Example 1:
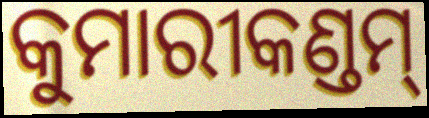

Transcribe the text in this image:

କୁମାରୀକଣ୍ଡମ୍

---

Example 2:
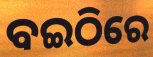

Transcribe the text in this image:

ବଇଠିରେ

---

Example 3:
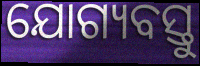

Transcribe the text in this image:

ଯୋଗ୍ୟବସ୍ତୁ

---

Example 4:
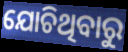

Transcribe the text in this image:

ଯୋଚିଥିବାରୁ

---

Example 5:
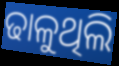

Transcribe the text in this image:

ଢାଳୁଥିଲି